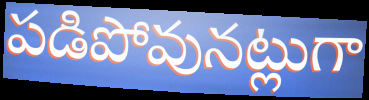
పడిపోవునట్లుగా